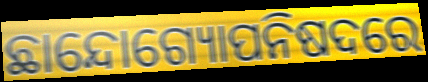
ଛାନ୍ଦୋଗ୍ୟୋପନିଷଦରେ